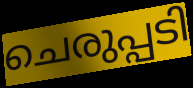
ചെരുപ്പടി